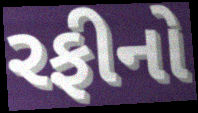
રફીનો